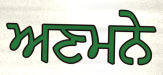
ਅਣਮਨੇ